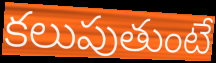
కలుపుతుంటే